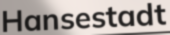
Hansestadt